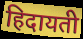
हिदायती